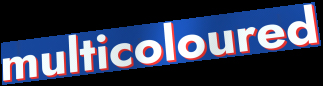
multicoloured